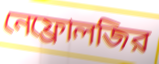
নেফ্রোলজির